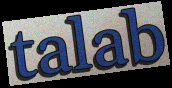
talab